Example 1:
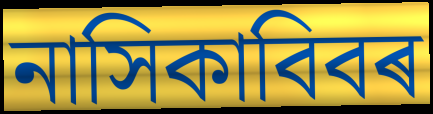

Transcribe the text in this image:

নাসিকাবিবৰ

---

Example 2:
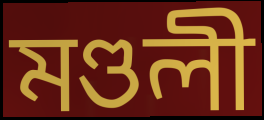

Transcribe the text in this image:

মণ্ডলী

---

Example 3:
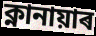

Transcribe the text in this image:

ক্নানায়াৰ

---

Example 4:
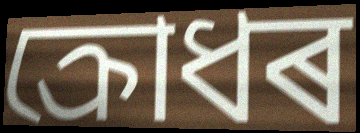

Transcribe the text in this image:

ক্ৰোধৰ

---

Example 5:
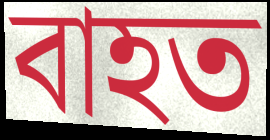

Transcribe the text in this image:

বাহত